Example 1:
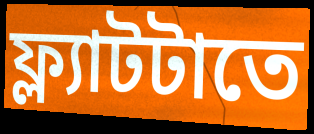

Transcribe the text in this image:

ফ্ল্যাটটাতে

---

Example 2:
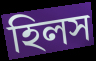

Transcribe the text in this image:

হিলস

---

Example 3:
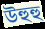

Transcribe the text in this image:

উহুহু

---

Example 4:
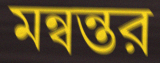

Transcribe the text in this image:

মন্বন্তর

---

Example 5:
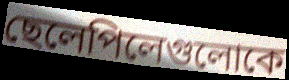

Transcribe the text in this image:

ছেলেপিলেগুলোকে